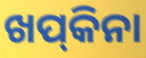
ଖପ୍‍କିନା